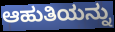
ಆಹುತಿಯನ್ನು